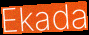
Ekada